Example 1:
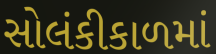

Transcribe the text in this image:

સોલંકીકાળમાં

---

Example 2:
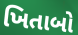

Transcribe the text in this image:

ખિતાબો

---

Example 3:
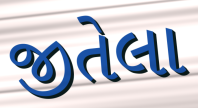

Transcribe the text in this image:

જીતેલા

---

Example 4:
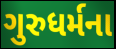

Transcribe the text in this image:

ગુરુધર્મના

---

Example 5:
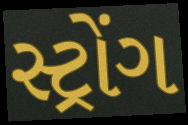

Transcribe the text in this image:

સ્ટ્રોંગ